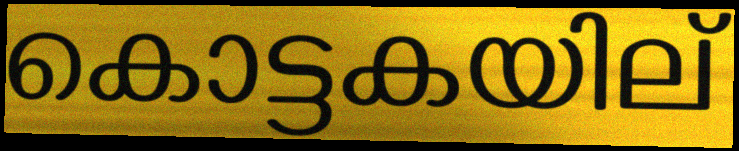
കൊട്ടകയില്